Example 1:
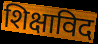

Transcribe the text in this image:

शिक्षाविद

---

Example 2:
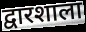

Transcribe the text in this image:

द्वारशाला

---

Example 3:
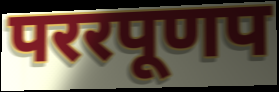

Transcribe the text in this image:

पररपूणप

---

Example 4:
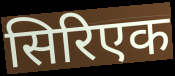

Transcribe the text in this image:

सिरिएक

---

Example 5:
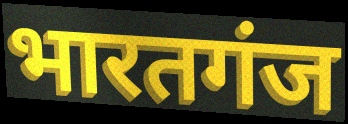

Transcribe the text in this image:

भारतगंज